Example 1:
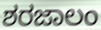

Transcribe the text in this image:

ಶರಜಾಲಂ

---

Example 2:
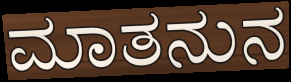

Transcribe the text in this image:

ಮಾತನುನ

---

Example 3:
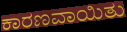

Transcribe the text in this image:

ಕಾರಣವಾಯಿತು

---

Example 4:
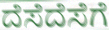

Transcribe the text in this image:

ದೆಸೆದೆಸೆಗೆ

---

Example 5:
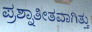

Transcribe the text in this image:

ಪ್ರಶ್ನಾತೀತವಾಗಿತ್ತು